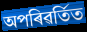
অপৰিৱৰ্তিত